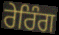
ਰੇਰਿੰਗ